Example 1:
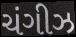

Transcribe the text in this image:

ચંગીઝ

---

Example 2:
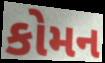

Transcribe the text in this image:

કોમન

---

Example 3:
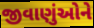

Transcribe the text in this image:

જીવાણુંઓને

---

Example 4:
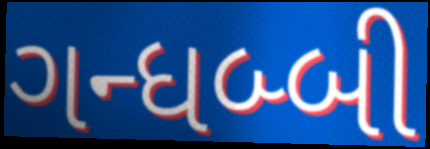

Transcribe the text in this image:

ગન્ધબ્બી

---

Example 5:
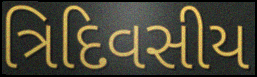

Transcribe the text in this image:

ત્રિદિવસીય